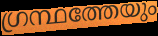
ഗ്രന്ഥത്തേയും